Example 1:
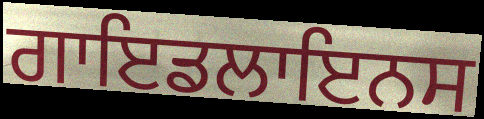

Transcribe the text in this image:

ਗਾਇਡਲਾਇਨਸ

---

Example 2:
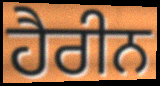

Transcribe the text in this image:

ਹੈਰੀਨ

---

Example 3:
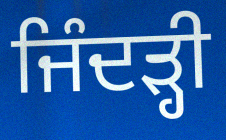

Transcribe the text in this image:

ਜਿੰਦੜ੍ਹੀ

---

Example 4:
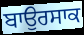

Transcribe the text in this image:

ਬਾਉਰਸਾਕ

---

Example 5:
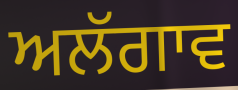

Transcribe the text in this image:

ਅਲੱਗਾਵ